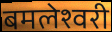
बमलेश्वरी